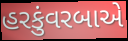
હરકુંવરબાએ